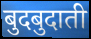
बुदबुदाती